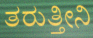
ತರುತ್ತೀನಿ